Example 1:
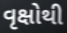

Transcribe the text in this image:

વૃક્ષોથી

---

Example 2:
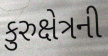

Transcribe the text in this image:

કુરુક્ષેત્રની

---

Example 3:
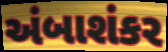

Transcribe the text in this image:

અંબાશંકર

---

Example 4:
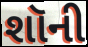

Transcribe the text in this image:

શૉની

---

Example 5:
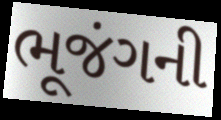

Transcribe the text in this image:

ભૂજંગની